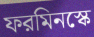
ফরমিনস্কে